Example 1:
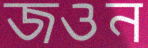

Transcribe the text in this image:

জওন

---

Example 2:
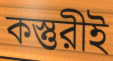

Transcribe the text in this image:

কস্তুরীই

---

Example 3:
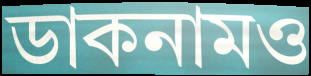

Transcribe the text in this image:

ডাকনামও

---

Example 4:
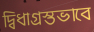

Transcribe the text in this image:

দ্বিধাগ্রস্তভাবে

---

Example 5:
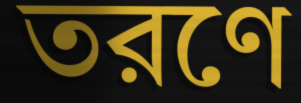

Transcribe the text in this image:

তরণে